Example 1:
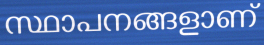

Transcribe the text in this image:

സ്ഥാപനങ്ങളാണ്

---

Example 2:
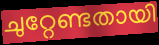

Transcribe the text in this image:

ചുറ്റേണ്ടതായി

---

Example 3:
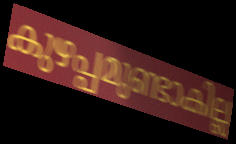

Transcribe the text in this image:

കുഴപ്പമുണ്ടാകില്ല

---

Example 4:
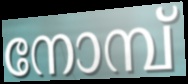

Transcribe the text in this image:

നോമ്പ്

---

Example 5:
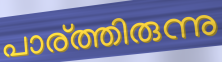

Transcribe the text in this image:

പാര്ത്തിരുന്നു